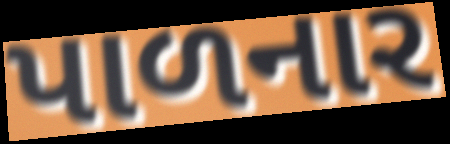
પાળનાર